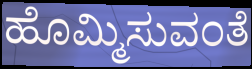
ಹೊಮ್ಮಿಸುವಂತೆ